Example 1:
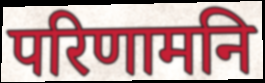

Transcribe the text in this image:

परिणामनि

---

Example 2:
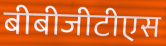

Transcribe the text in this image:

बीबीजीटीएस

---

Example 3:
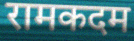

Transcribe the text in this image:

रामकदम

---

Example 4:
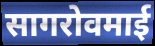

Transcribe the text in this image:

सागरोवमाई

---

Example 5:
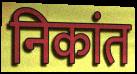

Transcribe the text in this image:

निकांत